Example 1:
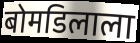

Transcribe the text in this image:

बोमडिलाला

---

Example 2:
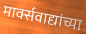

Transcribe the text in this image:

मार्क्सवाद्यांच्या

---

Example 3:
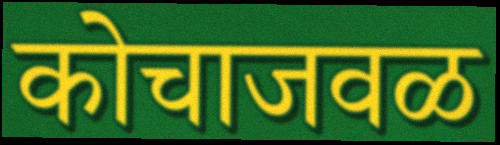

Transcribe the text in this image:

कोचाजवळ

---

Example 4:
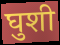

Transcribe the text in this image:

घुशी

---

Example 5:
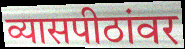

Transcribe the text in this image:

व्यासपीठांवर